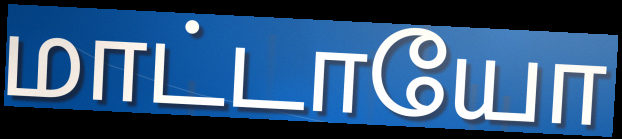
மாட்டாயோ